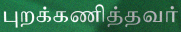
புறக்கணித்தவர்